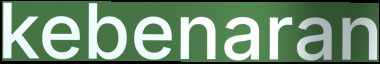
kebenaran